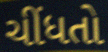
ચીંધતો